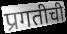
प्रगतीची